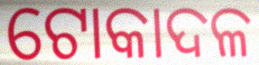
ଟୋକାଦଳ